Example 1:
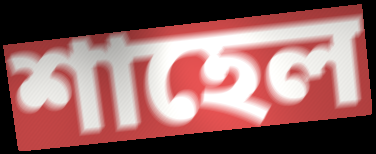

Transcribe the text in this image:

শাহেল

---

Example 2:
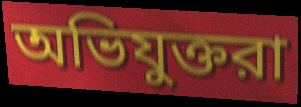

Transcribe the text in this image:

অভিযুক্তরা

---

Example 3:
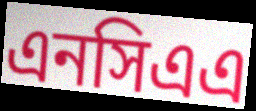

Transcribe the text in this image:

এনসিএএ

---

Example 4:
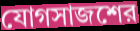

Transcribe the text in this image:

যোগসাজশের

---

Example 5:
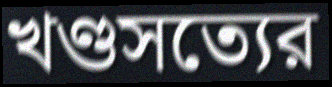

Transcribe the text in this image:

খণ্ডসত্যের